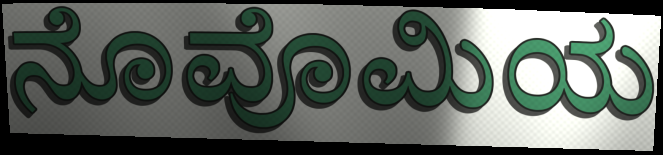
ನೊವೊಮಿಯ